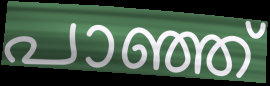
പാഞ്ഞ്